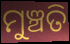
ମୁଞ୍ଚତି